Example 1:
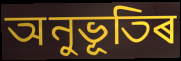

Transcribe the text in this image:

অনুভূতিৰ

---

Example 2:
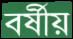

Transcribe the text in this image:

বৰ্ষীয়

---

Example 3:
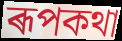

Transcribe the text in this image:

ৰূপকথা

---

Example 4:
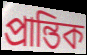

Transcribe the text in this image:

প্ৰান্তিক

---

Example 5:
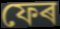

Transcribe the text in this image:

ফেৰ